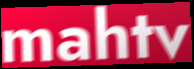
mahtv